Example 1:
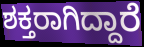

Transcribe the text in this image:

ಶಕ್ತರಾಗಿದ್ದಾರೆ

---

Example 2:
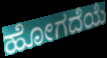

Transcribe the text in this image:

ಹೋಗದೆಯೆ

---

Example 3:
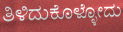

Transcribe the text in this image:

ತಿಳಿದುಕೊಳ್ಳೋದು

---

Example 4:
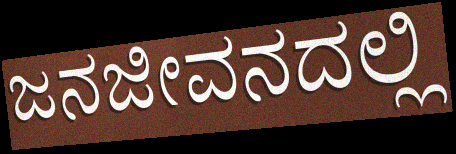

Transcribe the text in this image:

ಜನಜೀವನದಲ್ಲಿ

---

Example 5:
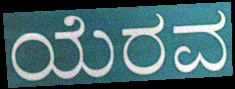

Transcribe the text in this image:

ಯೆರವ